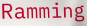
Ramming